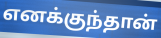
எனக்குந்தான்